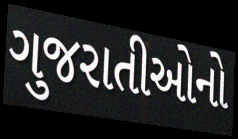
ગુજરાતીઓનો